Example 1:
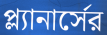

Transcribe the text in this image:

প্ল্যানার্সের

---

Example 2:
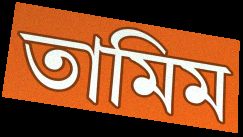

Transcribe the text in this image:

তামিম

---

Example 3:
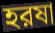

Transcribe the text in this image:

হরষা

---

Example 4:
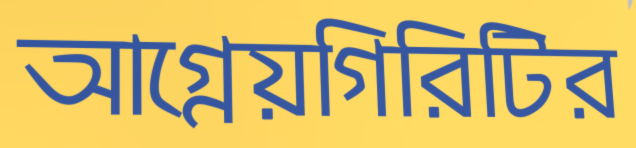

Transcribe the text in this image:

আগ্নেয়গিরিটির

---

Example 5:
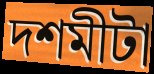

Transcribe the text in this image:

দশমীটা